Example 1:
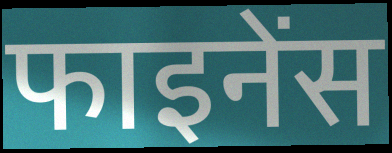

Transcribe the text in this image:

फाइनेंस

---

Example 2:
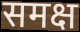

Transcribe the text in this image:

समक्ष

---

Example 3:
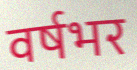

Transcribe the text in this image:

वर्षभर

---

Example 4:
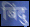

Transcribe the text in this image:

बिंदु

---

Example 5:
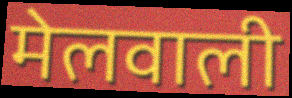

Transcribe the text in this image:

मेलवाली